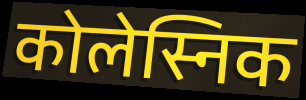
कोलेस्निक